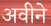
अवीने